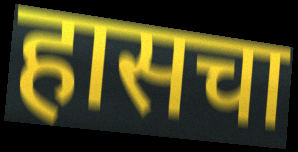
हासचा